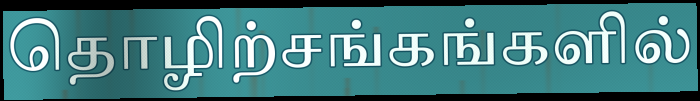
தொழிற்சங்கங்களில்